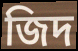
জিদ